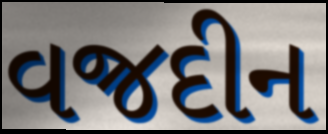
વજ્રદીન